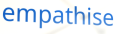
empathise